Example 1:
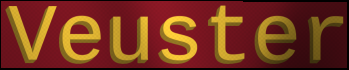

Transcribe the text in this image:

Veuster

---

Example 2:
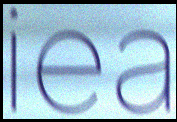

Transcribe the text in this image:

iea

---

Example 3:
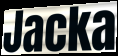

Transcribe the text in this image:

Jacka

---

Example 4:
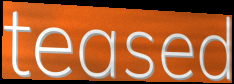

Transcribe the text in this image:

teased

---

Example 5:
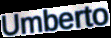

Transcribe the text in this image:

Umberto